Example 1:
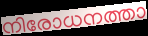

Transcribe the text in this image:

നിരോധനത്താ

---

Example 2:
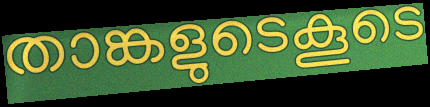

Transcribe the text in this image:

താങ്കളുടെകൂടെ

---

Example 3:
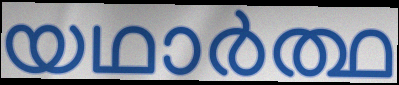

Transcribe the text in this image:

യഥാർത്ഥ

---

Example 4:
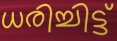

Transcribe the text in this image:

ധരിച്ചിട്ട്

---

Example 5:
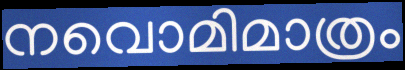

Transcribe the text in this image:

നവൊമിമാത്രം